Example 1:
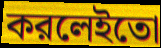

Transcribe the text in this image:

করলেইতো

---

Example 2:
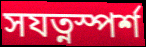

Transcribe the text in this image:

সযত্নস্পর্শ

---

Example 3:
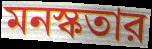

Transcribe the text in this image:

মনস্কতার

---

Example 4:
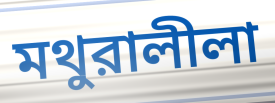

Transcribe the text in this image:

মথুরালীলা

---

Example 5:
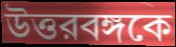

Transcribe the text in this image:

উত্তরবঙ্গকে